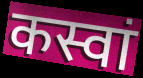
कस्वां